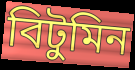
বিটুমিন